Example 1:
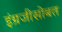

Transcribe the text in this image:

इंग्रजीसोबत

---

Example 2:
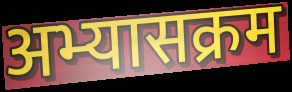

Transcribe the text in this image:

अभ्यासक्रम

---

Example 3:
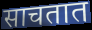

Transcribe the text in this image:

साचतात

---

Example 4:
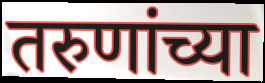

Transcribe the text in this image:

तरुणांच्या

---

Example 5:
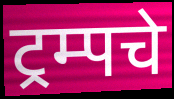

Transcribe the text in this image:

ट्रम्पचे